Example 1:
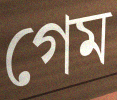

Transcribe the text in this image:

গেম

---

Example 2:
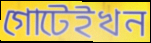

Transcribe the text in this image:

গোটেইখন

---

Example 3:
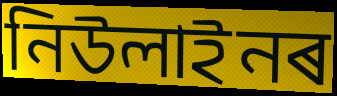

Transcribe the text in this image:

নিউলাইনৰ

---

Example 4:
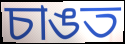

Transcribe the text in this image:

চাঙত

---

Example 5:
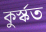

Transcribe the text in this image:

কুৰ্স্কত